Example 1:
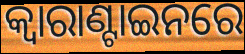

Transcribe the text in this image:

କ୍ବାରାଣ୍ଟାଇନରେ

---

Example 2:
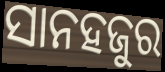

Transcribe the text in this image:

ସାନହଜୁର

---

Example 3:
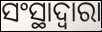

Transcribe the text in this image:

ସଂସ୍ଥାଦ୍ୱାରା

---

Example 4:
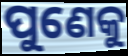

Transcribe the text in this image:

ପୁଣେକୁ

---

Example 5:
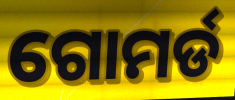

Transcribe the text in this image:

ଗୋମର୍ଡ